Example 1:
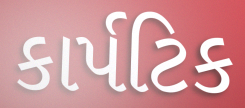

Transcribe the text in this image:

કાર્પટિક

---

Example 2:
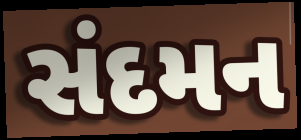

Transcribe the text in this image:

સંદમન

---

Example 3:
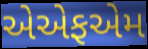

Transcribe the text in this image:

એએફએમ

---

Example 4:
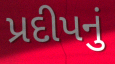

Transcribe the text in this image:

પ્રદીપનું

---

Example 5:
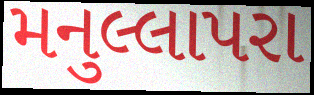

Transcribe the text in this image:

મનુલ્લાપરા